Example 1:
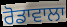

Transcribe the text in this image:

ਰੋਡਾਵਾਲਾ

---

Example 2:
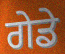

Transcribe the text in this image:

ਗੇਡੇ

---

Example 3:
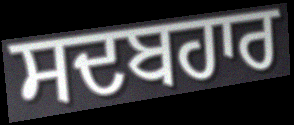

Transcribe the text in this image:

ਸਦਬਹਾਰ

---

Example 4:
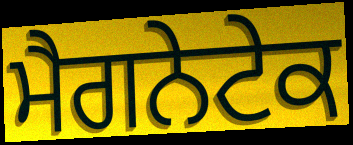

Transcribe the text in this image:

ਮੈਗਨੇਟੇਕ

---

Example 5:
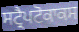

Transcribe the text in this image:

ਸਟ੍ਰੈਪਟੋਕਾਕਸ